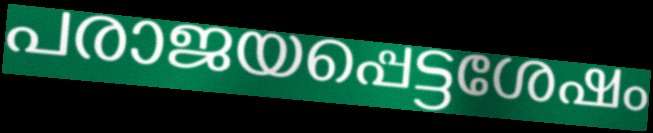
പരാജയപ്പെട്ടശേഷം